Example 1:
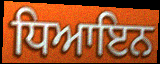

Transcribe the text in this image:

ਧਿਆਇਨ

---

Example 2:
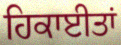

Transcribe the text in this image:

ਹਿਕਾਈਤਾਂ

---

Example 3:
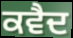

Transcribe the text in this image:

ਕਵੈਦ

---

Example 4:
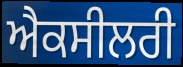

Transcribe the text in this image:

ਐਕਸੀਲਰੀ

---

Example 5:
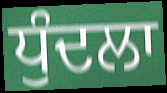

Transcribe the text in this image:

ਧੁੰਦਲਾ